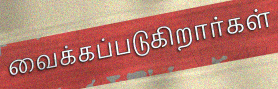
வைக்கப்படுகிறார்கள்